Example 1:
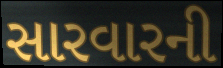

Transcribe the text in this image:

સારવારની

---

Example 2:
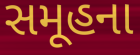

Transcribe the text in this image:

સમૂહના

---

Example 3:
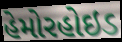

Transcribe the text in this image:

હેમોરહોઇડ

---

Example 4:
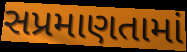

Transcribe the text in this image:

સપ્રમાણતામાં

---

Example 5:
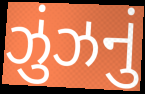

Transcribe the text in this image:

ઝુંઝનું